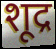
शूद्र